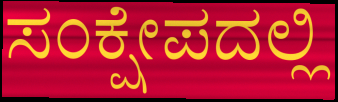
ಸಂಕ್ಷೇಪದಲ್ಲಿ